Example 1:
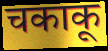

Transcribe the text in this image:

चकाकू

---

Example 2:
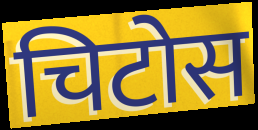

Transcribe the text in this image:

चिटोस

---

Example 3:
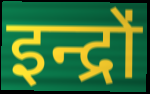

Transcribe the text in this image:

इन्द्रो॑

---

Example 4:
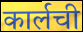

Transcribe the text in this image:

कार्लची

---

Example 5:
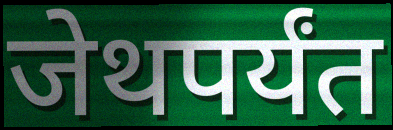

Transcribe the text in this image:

जेथपर्यंत